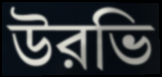
উরভি